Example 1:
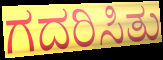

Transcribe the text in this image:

ಗದರಿಸಿತು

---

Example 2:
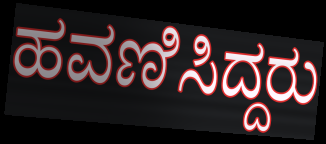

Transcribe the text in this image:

ಹವಣಿಸಿದ್ದರು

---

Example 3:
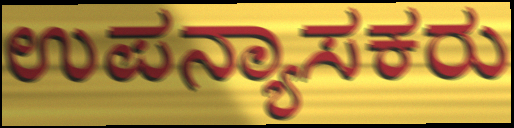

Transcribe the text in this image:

ಉಪನ್ಯಾಸಕರು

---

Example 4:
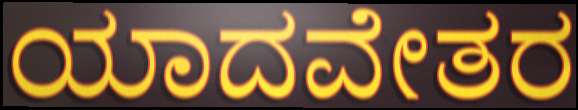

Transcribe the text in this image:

ಯಾದವೇತರ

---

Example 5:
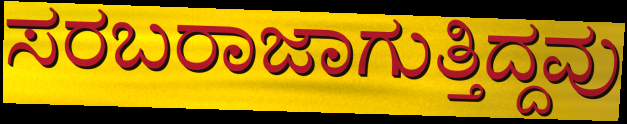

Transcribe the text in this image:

ಸರಬರಾಜಾಗುತ್ತಿದ್ದವು